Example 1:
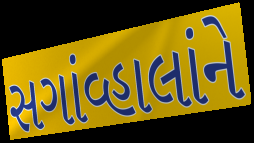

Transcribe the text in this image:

સગાંવ્હાલાંને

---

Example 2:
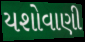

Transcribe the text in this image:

યશોવાણી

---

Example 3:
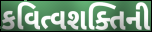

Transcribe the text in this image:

કવિત્વશક્તિની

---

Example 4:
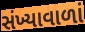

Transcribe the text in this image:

સંખ્યાવાળાં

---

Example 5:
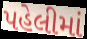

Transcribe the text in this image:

પહેલીમાં